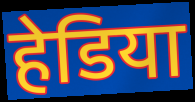
हेडिया